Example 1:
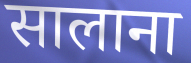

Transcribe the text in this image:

सालाना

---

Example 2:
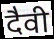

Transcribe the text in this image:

दैवी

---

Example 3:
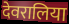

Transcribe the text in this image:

देवरालिया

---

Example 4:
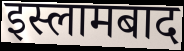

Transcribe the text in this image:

इस्लामबाद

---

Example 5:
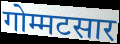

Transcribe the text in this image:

गोम्मटसार